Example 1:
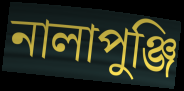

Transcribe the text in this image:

নালাপুঞ্জি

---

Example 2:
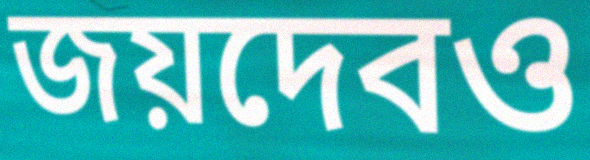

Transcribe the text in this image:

জয়দেবও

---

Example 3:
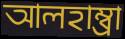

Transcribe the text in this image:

আলহাম্ব্রা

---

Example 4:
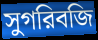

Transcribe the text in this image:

সুগরিবজি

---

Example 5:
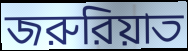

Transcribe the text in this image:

জরুরিয়াত